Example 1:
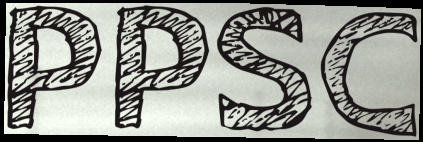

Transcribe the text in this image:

PPSC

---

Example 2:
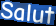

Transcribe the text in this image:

Salut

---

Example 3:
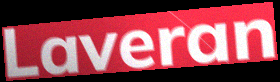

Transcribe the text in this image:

Laveran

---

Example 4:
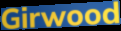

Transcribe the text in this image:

Girwood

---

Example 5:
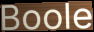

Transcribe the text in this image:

Boole